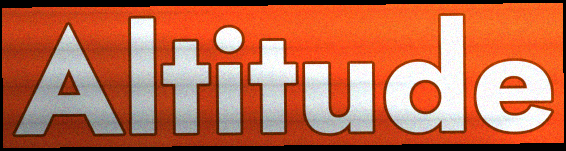
Altitude